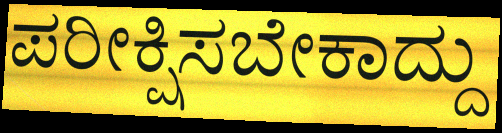
ಪರೀಕ್ಷಿಸಬೇಕಾದ್ದು